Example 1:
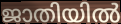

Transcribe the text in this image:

ജാതിയിൽ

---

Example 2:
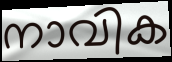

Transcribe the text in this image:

നാവിക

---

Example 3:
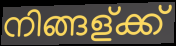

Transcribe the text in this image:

നിങ്ങള്ക്ക്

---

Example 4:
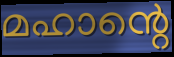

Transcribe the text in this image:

മഹാന്റെ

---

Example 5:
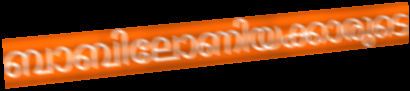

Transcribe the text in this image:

ബാബിലോണിയക്കാരുടെ